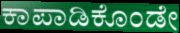
ಕಾಪಾಡಿಕೊಂಡೇ